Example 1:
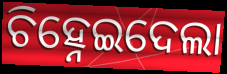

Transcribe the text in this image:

ଚିହ୍ନେଇଦେଲା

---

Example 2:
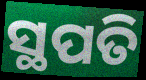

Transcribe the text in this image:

ସ୍ଥପତି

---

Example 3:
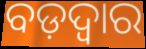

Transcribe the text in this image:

ବଡ଼ଦ୍ୱାର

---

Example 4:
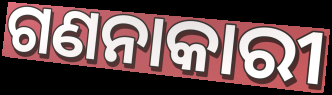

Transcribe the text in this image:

ଗଣନାକାରୀ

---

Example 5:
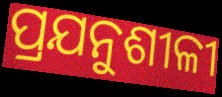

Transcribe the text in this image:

ପ୍ରଯନୁଶୀଳୀ